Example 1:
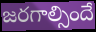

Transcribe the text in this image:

జరగాల్సిందే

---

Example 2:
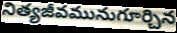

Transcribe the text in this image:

నిత్యజీవమునుగూర్చిన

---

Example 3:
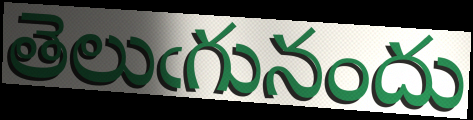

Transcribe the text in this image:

తెలుఁగునందు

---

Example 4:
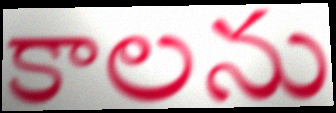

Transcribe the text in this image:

కాలను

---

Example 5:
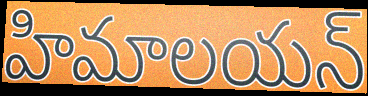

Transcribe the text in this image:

హిమాలయన్